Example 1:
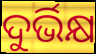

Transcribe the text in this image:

ଦୁର୍ଭିକ୍ଷ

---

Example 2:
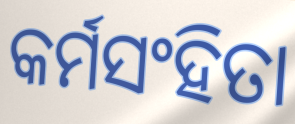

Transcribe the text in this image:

କର୍ମସଂହିତା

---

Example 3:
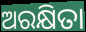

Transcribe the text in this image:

ଅରକ୍ଷିତା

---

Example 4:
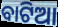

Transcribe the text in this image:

ବାଟିଆ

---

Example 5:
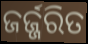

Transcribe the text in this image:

ଜର୍ଜ୍ଜରିତ